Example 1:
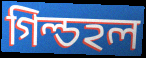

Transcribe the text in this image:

গিল্ডহল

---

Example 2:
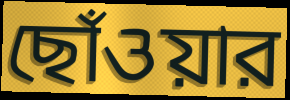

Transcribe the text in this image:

ছোঁওয়ার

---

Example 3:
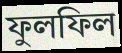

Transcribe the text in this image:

ফুলফিল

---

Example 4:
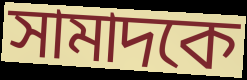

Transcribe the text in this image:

সামাদকে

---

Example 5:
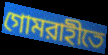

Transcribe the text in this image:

গোমরাহীতে